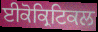
ਈਕੋਕ੍ਰਿਟਿਕਲ